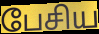
பேசிய